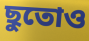
ছুতোও